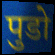
पुडो